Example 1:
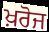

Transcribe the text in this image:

ਖ਼ਰੋਜ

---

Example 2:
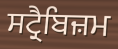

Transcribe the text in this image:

ਸਟ੍ਰੈਬਿਜ਼ਮ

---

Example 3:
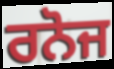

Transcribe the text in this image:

ਰਨੋਜ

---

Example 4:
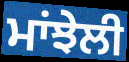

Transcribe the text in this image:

ਮਾਂਝੇਲੀ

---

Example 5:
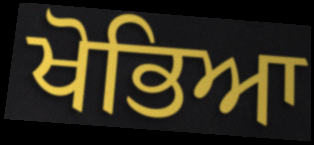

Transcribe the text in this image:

ਖੋਭਿਆ